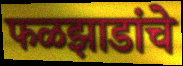
फळझाडांचे